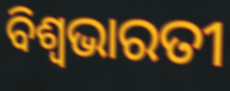
ବିଶ୍ୱଭାରତୀ